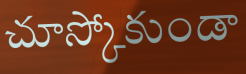
చూస్కోకుండా